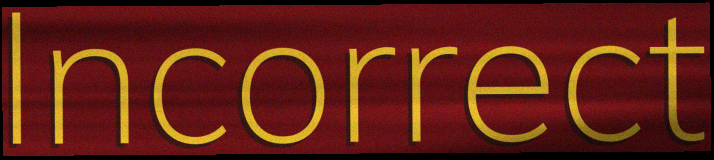
Incorrect